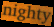
nighty